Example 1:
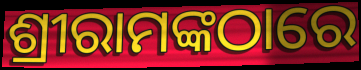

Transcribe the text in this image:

ଶ୍ରୀରାମଙ୍କଠାରେ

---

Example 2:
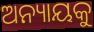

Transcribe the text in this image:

ଅନ୍ୟାୟକୁ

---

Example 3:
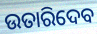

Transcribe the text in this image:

ଉତାରିଦେବ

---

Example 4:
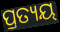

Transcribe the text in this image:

ପ୍ରତ୍ୟୟ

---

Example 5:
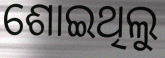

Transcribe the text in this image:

ଶୋଇଥିଲୁ